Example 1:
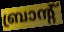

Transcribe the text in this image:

ബ്രാന്റ്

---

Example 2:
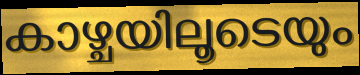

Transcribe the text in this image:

കാഴ്ചയിലൂടെയും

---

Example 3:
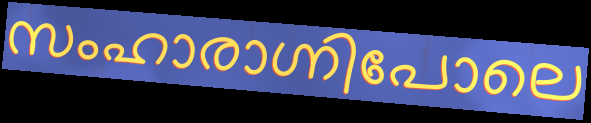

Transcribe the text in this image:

സംഹാരാഗ്നിപോലെ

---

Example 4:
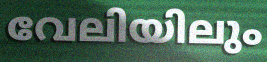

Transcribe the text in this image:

വേലിയിലും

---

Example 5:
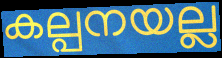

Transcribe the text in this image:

കല്പനയല്ല